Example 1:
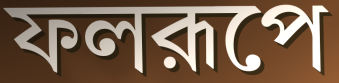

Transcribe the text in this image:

ফলরূপে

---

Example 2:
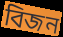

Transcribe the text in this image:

বিজন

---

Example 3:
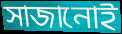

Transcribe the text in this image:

সাজানোই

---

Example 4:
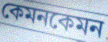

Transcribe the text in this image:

কেমনকেমন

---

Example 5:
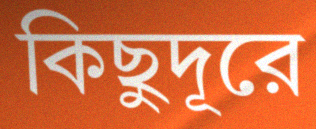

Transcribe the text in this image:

কিছুদূরে